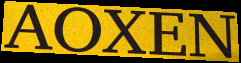
AOXEN